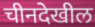
चीनदेखील